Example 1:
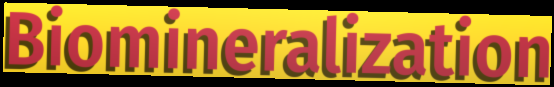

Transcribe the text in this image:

Biomineralization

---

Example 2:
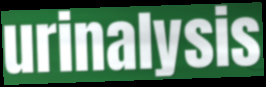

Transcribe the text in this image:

urinalysis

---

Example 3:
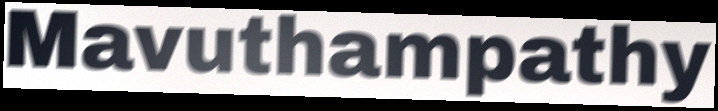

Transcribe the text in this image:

Mavuthampathy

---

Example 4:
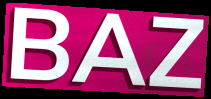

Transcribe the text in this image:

BAZ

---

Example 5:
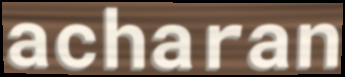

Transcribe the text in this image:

acharan